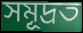
সমূদ্ৰত